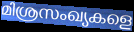
മിശ്രസംഖ്യകളെ